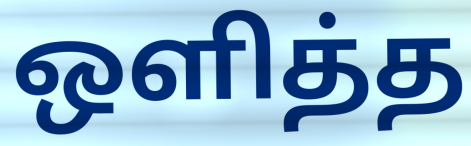
ஒளித்த